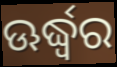
ଊର୍ଦ୍ଧ୍ଵର